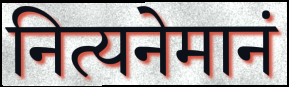
नित्यनेमानं